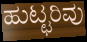
ಹುಟ್ಟರಿವು